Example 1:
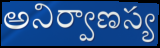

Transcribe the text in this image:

అనిర్వాణస్య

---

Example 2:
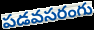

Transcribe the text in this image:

పడవసరంగు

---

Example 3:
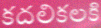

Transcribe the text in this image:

కదలికలకి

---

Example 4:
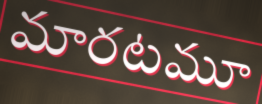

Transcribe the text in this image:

మారటమూ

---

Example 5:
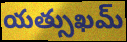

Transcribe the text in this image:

యత్సుఖమ్